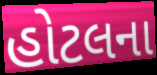
હોટલના